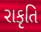
રાકૃતિ